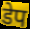
डेप